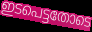
ഇടപെട്ടതോടെ